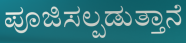
ಪೂಜಿಸಲ್ಪಡುತ್ತಾನೆ